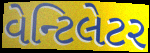
વેન્‍ટિલેટર